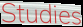
Studies